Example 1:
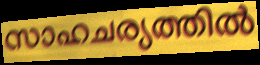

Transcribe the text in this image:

സാഹചര്യത്തിൽ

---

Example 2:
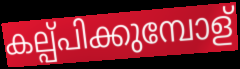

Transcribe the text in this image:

കല്പ്പിക്കുമ്പോള്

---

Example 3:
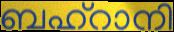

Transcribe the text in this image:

ബഹ്റാനി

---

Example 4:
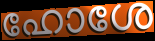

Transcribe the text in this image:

ഹോശേ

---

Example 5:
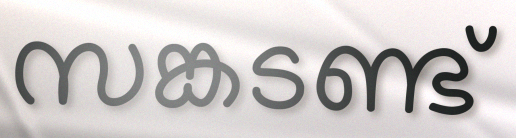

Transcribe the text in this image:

സങ്കടണ്ട്